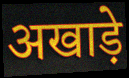
अखाड़े